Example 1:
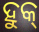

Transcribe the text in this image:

ହୁକ୍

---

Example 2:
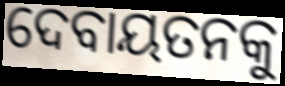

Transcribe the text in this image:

ଦେବାୟତନକୁ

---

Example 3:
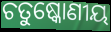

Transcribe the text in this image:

ଚତୁଷ୍କୋଣୀୟ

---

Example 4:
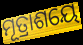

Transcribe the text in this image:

ମୂତ୍ରାଶୟେ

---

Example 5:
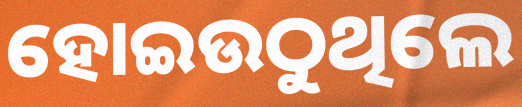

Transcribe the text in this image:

ହୋଇଉଠୁଥିଲେ